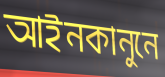
আইনকানুনে